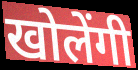
खोलेंगी